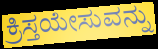
ಕ್ರಿಸ್ತಯೇಸುವನ್ನು